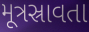
મૂત્રસ્રાવતા